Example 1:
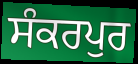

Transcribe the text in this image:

ਸੰਕਰਪੁਰ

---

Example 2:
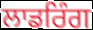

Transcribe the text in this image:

ਲਾਡਰਿੰਗ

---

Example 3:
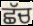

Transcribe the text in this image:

ਛੱਚ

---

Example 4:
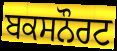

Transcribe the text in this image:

ਬਕਸਨੌਰਟ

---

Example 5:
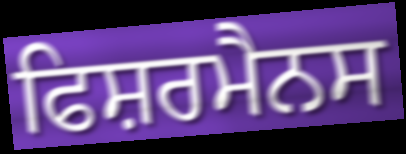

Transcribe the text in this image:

ਫਿਸ਼ਰਮੈਨਸ